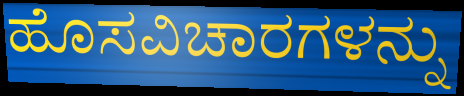
ಹೊಸವಿಚಾರಗಳನ್ನು